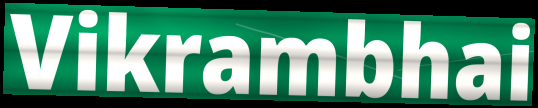
Vikrambhai